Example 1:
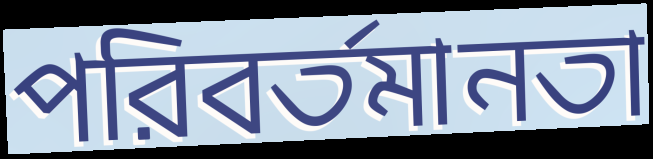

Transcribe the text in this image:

পরিবর্তমানতা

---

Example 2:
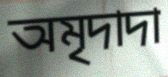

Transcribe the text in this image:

অমৃদাদা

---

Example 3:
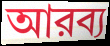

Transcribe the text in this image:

আরব্য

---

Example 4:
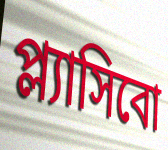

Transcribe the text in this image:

প্ল্যাসিবো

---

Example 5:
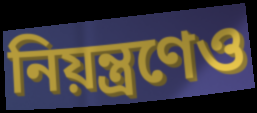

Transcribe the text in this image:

নিয়ন্ত্রণেও